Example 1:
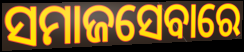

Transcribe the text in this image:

ସମାଜସେବାରେ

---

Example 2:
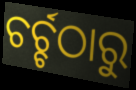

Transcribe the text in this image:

ଚର୍ଚ୍ଚଠାରୁ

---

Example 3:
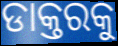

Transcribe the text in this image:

ଡାକ୍ତରକୁ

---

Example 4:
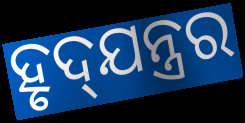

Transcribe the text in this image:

ହୃଦ୍‍ଯନ୍ତ୍ରର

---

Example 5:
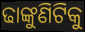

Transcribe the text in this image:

ଢାଙ୍କୁଣିଟିକୁ